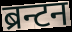
ब्रन्टन